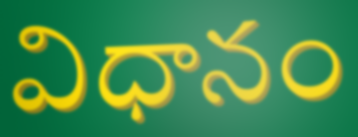
విధానం